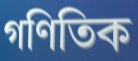
গণিতিক